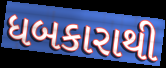
ધબકારાથી